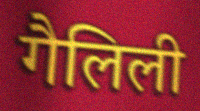
गैलिली